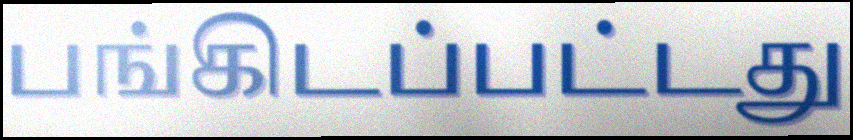
பங்கிடப்பட்டது